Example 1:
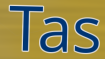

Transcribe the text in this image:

Tas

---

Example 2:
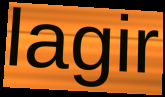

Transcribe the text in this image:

lagir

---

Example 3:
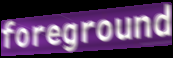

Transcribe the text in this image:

foreground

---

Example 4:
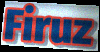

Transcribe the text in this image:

Firuz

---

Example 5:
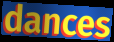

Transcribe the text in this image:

dances